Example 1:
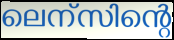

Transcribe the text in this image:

ലെന്സിന്റെ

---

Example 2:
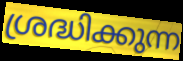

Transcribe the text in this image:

ശ്രദ്ധിക്കുന്ന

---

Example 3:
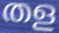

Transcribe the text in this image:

തള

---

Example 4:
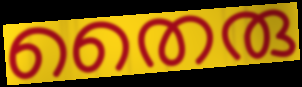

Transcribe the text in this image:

തൈരു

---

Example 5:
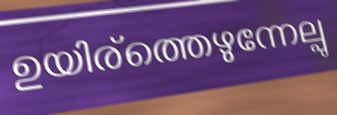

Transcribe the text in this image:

ഉയിര്ത്തെഴുന്നേല്പു